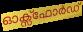
ഓക്സ്ഫോർഡ്